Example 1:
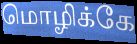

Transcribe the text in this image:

மொழிக்கே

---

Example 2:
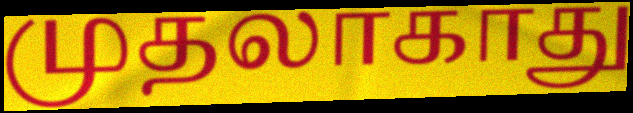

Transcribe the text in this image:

முதலாகாது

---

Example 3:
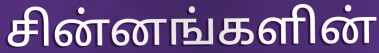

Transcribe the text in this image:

சின்னங்களின்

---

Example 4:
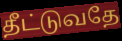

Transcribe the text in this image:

தீட்டுவதே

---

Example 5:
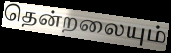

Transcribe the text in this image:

தென்றலையும்